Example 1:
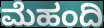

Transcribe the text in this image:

ಮೆಹಂದಿ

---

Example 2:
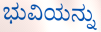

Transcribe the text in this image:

ಭುವಿಯನ್ನು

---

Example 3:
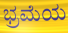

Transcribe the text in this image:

ಭ್ರಮೆಯ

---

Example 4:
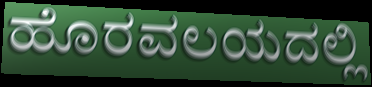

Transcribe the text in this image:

ಹೊರವಲಯದಲ್ಲಿ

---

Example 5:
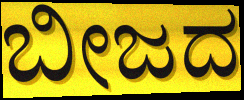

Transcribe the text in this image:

ಬೀಜದ